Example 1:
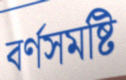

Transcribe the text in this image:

বৰ্ণসমষ্টি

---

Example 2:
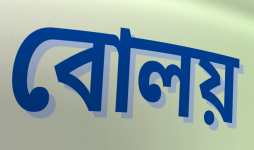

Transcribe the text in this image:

বোলয়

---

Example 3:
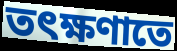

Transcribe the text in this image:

তৎক্ষণাতে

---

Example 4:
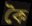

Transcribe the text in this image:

কৈ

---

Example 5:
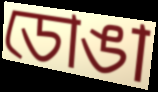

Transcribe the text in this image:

ডোঙা